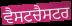
ਵੈਸਟਚੈਸਟਰ